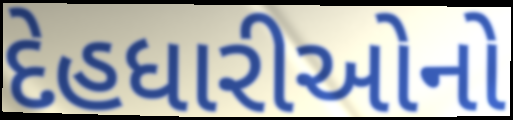
દેહધારીઓનો